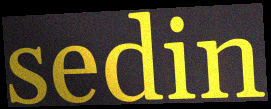
sedin